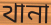
থানা